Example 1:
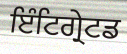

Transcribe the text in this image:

ਇੰਟਿਗ੍ਰੇਟਡ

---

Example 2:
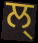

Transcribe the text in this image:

ਲ੍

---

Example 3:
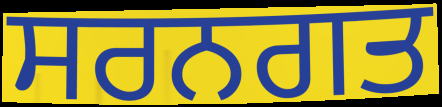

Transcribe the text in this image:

ਸਰਨਗਤ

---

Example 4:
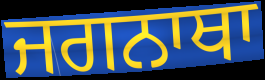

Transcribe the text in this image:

ਜਗਨਾਥਾ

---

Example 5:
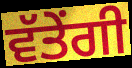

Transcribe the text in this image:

ਵੱਤੇਂਗੀ